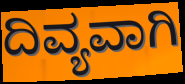
ದಿವ್ಯವಾಗಿ